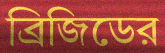
ব্রিজিডের